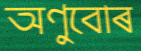
অণুবোৰ